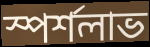
স্পর্শলাভ